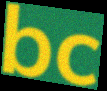
bc